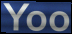
Yoo